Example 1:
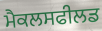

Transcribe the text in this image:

ਮੈਕਲਸਫੀਲਡ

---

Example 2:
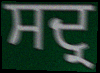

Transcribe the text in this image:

ਸਦ੍ਰ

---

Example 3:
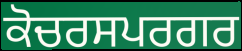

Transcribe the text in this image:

ਕੋਚਰਸਪਰਗਰ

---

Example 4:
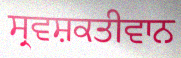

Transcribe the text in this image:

ਸ੍ਰਵਸ਼ਕਤੀਵਾਨ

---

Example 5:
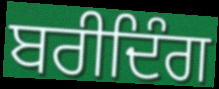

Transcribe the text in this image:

ਬਰੀਦਿੰਗ